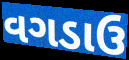
વગડાઉ